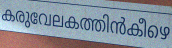
കരുവേലകത്തിൻകീഴെ